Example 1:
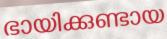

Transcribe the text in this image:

ഭായിക്കുണ്ടായ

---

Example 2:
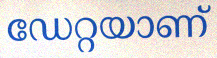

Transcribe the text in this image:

ഡേറ്റയാണ്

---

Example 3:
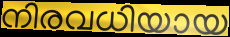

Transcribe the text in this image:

നിരവധിയായ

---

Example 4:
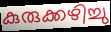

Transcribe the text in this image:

കുരുക്കഴിച്ചു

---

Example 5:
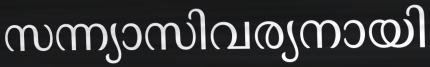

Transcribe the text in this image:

സന്ന്യാസിവര്യനായി